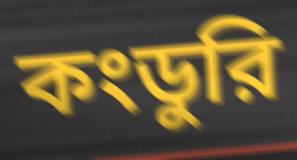
কংডুরি